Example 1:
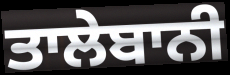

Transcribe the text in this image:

ਤਾਲੇਬਾਨੀ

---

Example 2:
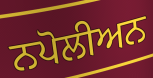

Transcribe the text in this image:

ਨਪੋਲੀਅਨ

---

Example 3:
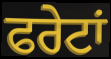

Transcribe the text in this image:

ਫਰੇਟਾਂ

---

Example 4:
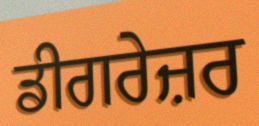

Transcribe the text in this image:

ਡੀਗਰੇਜ਼ਰ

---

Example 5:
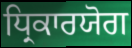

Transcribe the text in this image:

ਧ੍ਰਿਕਾਰਯੋਗ